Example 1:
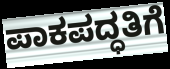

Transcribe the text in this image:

ಪಾಕಪದ್ಧತಿಗೆ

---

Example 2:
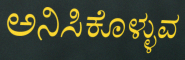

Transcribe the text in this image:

ಅನಿಸಿಕೊಳ್ಳುವ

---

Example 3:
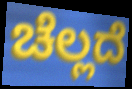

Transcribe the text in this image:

ಚೆಲ್ಲದೆ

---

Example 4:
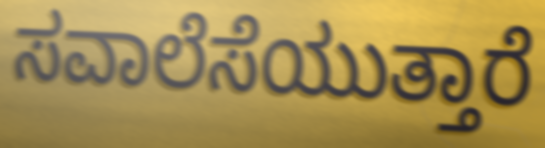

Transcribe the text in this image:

ಸವಾಲೆಸೆಯುತ್ತಾರೆ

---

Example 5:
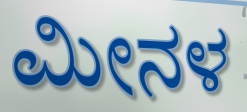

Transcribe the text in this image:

ಮೀನಳ